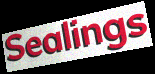
Sealings